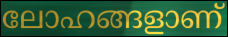
ലോഹങ്ങളാണ്